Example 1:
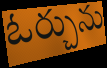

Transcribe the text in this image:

ఓర్చును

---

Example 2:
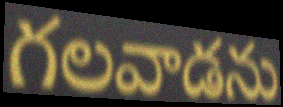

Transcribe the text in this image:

గలవాడను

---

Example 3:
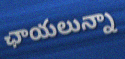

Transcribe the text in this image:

ఛాయలున్నా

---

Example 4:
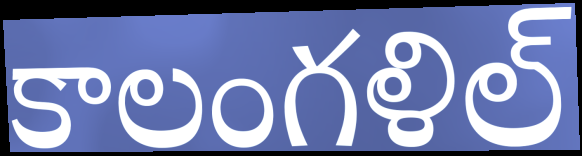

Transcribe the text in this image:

కాలంగళిల్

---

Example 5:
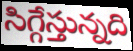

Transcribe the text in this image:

సిగ్గేస్తున్నది